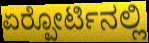
ಏರ್‍ಪೋರ್ಟಿನಲ್ಲಿ